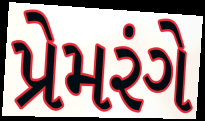
પ્રેમરંગે